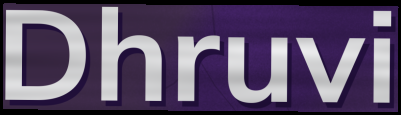
Dhruvi